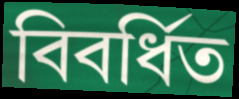
বিবর্ধিত